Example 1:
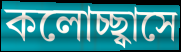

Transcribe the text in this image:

কলোচ্ছ্বাসে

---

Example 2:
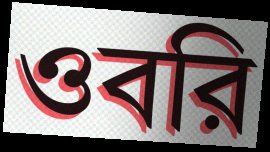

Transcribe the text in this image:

ওবরি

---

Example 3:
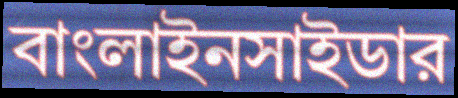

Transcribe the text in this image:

বাংলাইনসাইডার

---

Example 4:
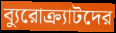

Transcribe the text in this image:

ব্যুরোক্র্যাটদের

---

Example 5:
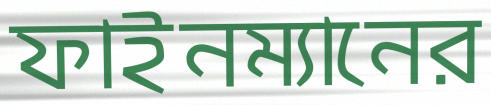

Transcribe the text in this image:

ফাইনম্যানের